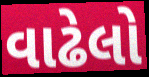
વાઢેલો